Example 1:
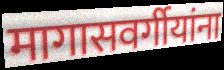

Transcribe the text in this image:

मागासवर्गीयांना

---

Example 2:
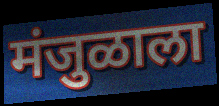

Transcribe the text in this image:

मंजुळाला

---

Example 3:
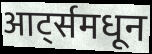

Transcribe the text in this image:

आर्ट्समधून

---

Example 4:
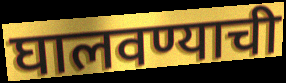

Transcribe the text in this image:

घालवण्याची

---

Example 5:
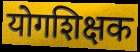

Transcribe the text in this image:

योगशिक्षक